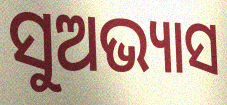
ସୁଅଭ୍ୟାସ